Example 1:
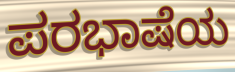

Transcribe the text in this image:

ಪರಭಾಷೆಯ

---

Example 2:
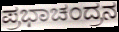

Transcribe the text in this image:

ಪ್ರಭಾಚಂದ್ರನ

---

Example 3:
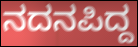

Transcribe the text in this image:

ನದನಪಿದ್ದ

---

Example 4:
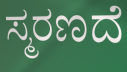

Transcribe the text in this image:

ಸ್ಮರಣದೆ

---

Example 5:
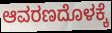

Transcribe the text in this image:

ಆವರಣದೊಳಕ್ಕೆ